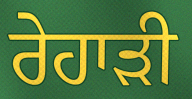
ਰੇਹਾੜੀ